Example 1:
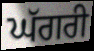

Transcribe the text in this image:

ਘੱਗਰੀ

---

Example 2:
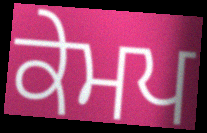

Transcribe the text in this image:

ਕੇਮਪ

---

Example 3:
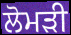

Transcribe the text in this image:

ਲੋਮੜੀ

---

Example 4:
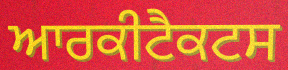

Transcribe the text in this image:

ਆਰਕੀਟੈਕਟਸ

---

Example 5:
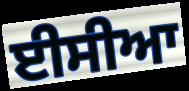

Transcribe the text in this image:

ਈਸੀਆ